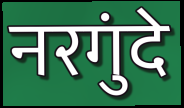
नरगुंदे